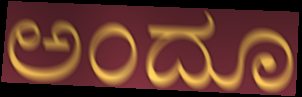
ಅಂದೂ